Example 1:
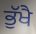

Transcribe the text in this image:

ਭੁੱਖੈ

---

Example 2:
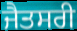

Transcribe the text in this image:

ਜੈਤਸਰੀ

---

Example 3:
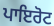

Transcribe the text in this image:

ਪਾਇਰੋਟ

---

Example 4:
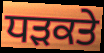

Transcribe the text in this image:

ਧੜਕਤੇ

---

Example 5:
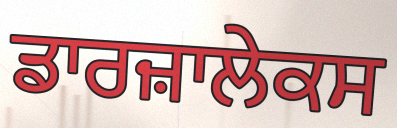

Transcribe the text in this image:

ਡਾਰਜ਼ਾਲੇਕਸ